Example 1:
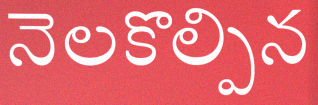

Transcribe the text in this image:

నెలకొల్పిన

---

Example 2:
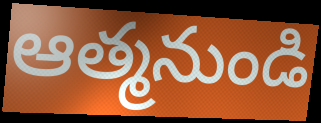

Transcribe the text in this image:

ఆత్మనుండి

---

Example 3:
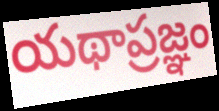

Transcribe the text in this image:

యథాప్రజ్ఞం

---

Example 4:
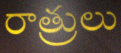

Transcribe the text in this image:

రాత్రులు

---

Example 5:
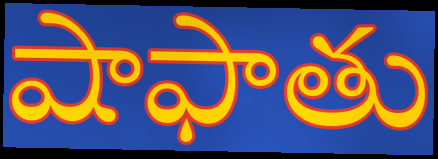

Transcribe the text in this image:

షాఫాతు